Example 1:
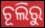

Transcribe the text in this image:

ଚୂଲିରୁ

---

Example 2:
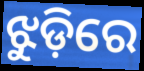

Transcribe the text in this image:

ଝୁଡ଼ିରେ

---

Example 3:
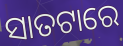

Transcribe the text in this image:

ସାତଟାରେ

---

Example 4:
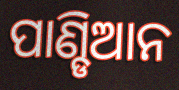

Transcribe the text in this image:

ପାଣ୍ଡିଆନ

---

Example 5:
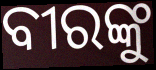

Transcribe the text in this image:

ବୀରଙ୍କୁ